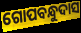
ଗୋପବନ୍ଧୁଦାସ